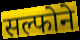
सल्फोने